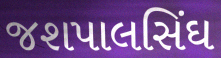
જશપાલસિંઘ